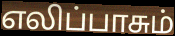
எலிப்பாசும்